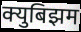
क्युबिझम